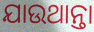
ଯାଉଥାନ୍ତା